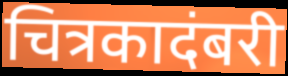
चित्रकादंबरी